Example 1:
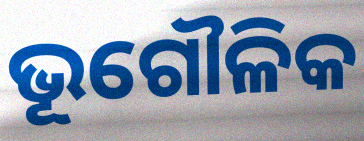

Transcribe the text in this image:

ଭୂଗୌଳିକ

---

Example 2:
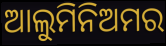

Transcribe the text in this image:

ଆଲୁମିନିଅମର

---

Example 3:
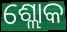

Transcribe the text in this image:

ଶ୍ଲୋକ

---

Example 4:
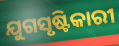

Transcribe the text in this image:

ଯୁଗସୃଷ୍ଟିକାରୀ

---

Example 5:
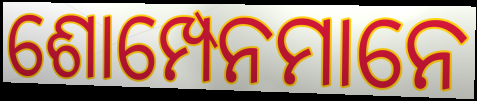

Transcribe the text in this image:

ଶୋମ୍ପେନମାନେ